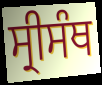
ਸ੍ਰੀਸੰਥ